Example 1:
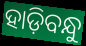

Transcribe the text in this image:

ହାଡ଼ିବନ୍ଧୁ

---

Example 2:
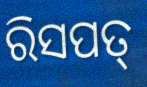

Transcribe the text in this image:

ରିସପତ୍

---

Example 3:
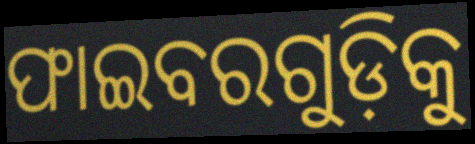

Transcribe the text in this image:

ଫାଇବରଗୁଡ଼ିକୁ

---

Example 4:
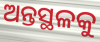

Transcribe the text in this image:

ଅନ୍ତସ୍ଥଳକୁ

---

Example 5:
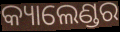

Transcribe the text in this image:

କ୍ୟାଲେଣ୍ଡର